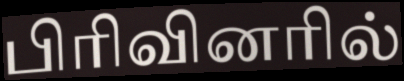
பிரிவினரில்